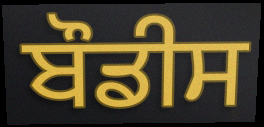
ਬੌਡੀਸ